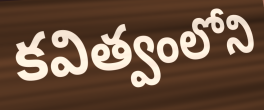
కవిత్వంలోని